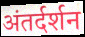
अंतर्दर्शन